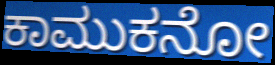
ಕಾಮುಕನೋ